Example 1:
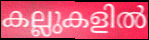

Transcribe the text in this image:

കല്ലുകളിൽ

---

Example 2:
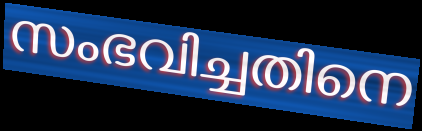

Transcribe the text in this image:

സംഭവിച്ചതിനെ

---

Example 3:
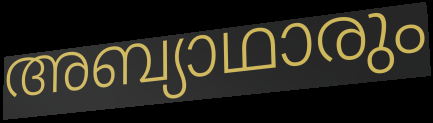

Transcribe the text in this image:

അബ്യാഥാരും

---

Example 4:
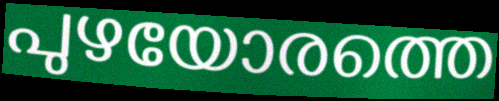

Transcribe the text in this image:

പുഴയോരത്തെ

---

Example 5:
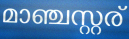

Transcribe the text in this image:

മാഞ്ചസ്റ്റര്